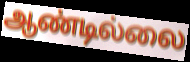
ஆண்டில்லை